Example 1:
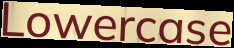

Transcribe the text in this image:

Lowercase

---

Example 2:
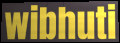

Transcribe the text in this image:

wibhuti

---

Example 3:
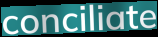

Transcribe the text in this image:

conciliate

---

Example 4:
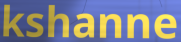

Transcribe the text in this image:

kshanne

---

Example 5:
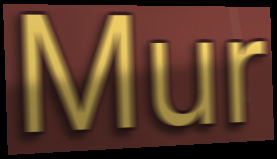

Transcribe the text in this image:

Mur